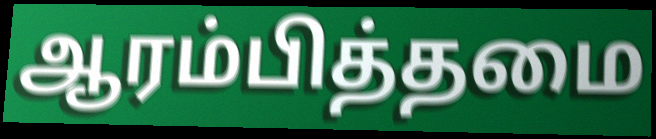
ஆரம்பித்தமை